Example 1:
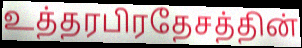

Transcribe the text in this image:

உத்தரபிரதேசத்தின்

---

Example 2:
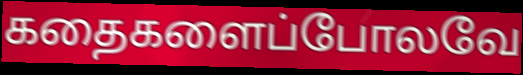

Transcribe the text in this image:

கதைகளைப்போலவே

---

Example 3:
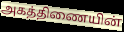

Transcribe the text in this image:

அகத்திணையின்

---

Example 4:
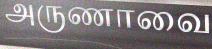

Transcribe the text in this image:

அருணாவை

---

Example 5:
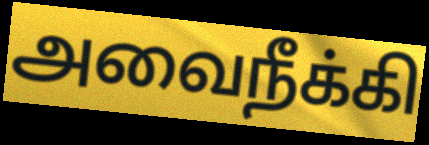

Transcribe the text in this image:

அவைநீக்கி